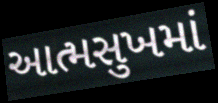
આત્મસુખમાં